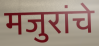
मजुरांचे